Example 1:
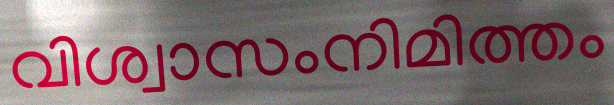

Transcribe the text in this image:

വിശ്വാസംനിമിത്തം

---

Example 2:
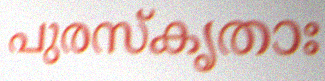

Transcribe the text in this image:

പുരസ്കൃതാഃ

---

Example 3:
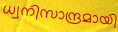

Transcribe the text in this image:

ധ്വനിസാന്ദ്രമായി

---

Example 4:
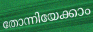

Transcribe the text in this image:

തോന്നിയേക്കാം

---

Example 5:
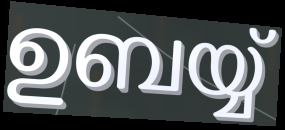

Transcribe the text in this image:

ഉബയ്യ്